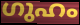
ഗുഹം